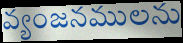
వ్యంజనములను